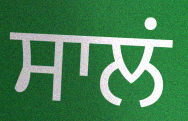
ਸਾਲਂ